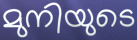
മുനിയുടെ